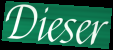
Dieser